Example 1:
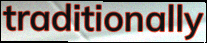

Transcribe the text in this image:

traditionally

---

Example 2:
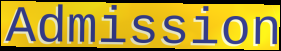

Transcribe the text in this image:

Admission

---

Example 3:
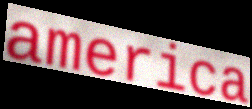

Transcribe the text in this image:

america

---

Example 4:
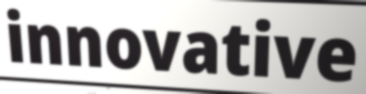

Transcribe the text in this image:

innovative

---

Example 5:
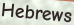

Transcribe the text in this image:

Hebrews